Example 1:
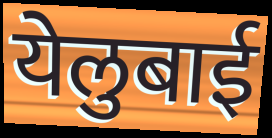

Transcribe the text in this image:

येलुबाई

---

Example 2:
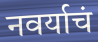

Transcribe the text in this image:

नवर्याचं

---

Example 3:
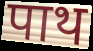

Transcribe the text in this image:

पाथ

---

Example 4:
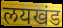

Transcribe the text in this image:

लयखंड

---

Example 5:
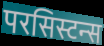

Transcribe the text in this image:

परसिस्टन्स